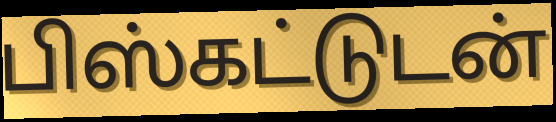
பிஸ்கட்டுடன்